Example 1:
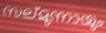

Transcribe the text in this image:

സല്മുന്നായും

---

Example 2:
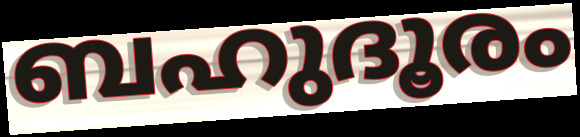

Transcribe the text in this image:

ബഹുദൂരം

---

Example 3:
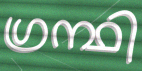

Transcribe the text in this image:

ഗ്രന്ഥി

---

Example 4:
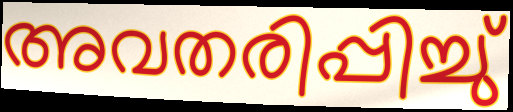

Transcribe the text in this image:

അവതരിപ്പിച്ചു്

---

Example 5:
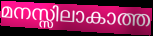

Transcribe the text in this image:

മനസ്സിലാകാത്ത